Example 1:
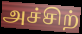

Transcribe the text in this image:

அச்சிற்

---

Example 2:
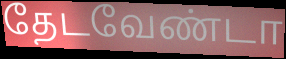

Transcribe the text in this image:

தேடவேண்டா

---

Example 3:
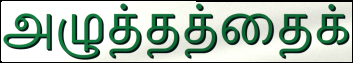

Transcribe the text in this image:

அழுத்தத்தைக்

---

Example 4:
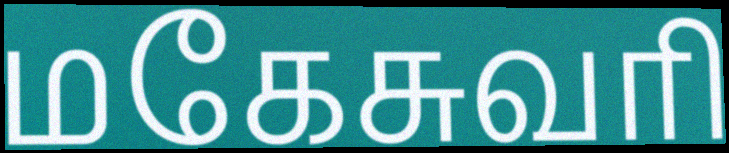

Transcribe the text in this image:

மகேசுவரி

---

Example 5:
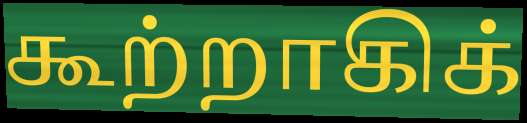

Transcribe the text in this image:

கூற்றாகிக்